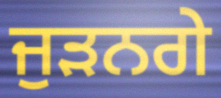
ਜੁਡ਼ਨਗੇ